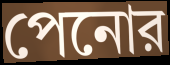
পেনোর